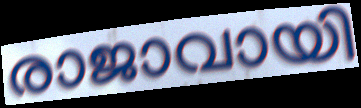
രാജാവായി